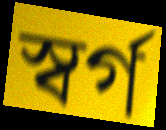
স্বর্গ